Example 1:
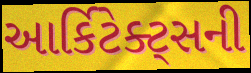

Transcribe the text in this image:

આર્કિટેક્ટ્સની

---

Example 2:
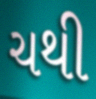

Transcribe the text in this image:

ચથી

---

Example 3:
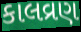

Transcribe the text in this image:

કાલવ્રણ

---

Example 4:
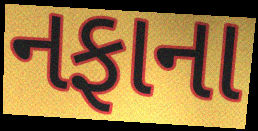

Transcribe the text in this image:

નફાના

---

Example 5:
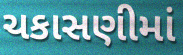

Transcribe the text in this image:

ચકાસણીમાં